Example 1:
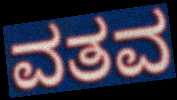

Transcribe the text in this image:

ವತವ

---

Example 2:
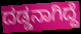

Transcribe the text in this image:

ದಡ್ಡನಾಗಿದ್ದೆ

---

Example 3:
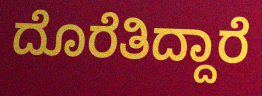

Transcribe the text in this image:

ದೊರೆತಿದ್ದಾರೆ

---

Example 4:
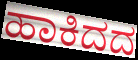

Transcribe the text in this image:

ಹಾಕಿದದ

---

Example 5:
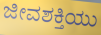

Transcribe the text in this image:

ಜೀವಶಕ್ತಿಯು